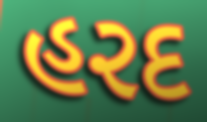
હરદ